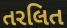
તરલિત